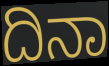
ದಿನಾ